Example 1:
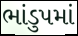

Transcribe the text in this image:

ભાંડુપમાં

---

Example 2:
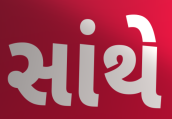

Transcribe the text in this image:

સાંથે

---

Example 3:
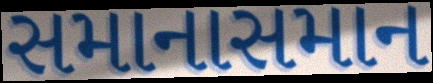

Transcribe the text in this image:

સમાનાસમાન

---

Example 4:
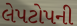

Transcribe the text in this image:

લેપટોપની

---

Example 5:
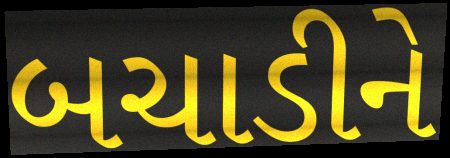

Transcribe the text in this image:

બચાડીને